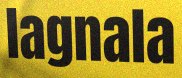
lagnala